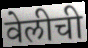
वेलीची